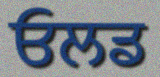
ਓਲਡ